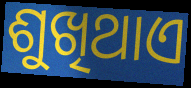
ଶୁଖିଥାଏ